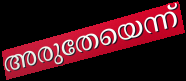
അരുതേയെന്ന്